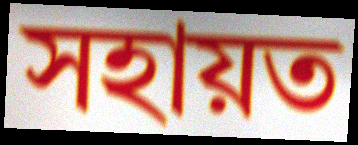
সহায়ত